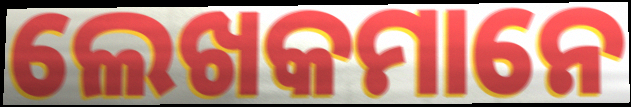
ଲେଖକମାନେ